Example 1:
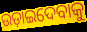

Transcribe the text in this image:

ଉଡ଼ାଇଦେବାକୁ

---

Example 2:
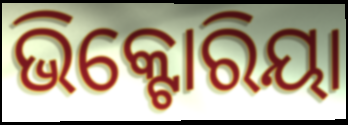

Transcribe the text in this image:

ଭିକ୍ଟୋରିୟା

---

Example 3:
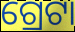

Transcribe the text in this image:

ଗ୍ରେଟା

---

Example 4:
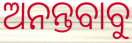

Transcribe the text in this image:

ଅନନ୍ତବାବୁ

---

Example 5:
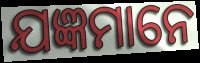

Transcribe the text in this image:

ଯଜ୍ଞମାନେ